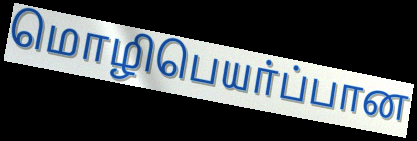
மொழிபெயர்ப்பான